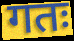
गतः